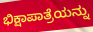
ಭಿಕ್ಷಾಪಾತ್ರೆಯನ್ನು